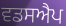
ਵਡਸਐਪ